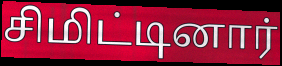
சிமிட்டினார்